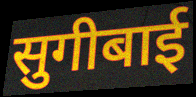
सुगीबाई